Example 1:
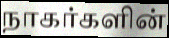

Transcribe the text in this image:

நாகர்களின்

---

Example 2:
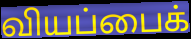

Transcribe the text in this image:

வியப்பைக்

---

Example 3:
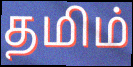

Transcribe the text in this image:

தமிம்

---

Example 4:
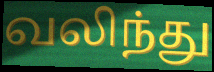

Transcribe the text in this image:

வலிந்து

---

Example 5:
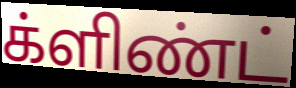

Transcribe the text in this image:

க்ளிண்ட்